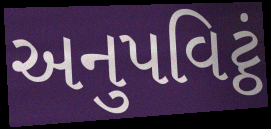
અનુપવિટ્ઠં